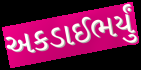
અકડાઈભર્યું